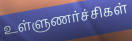
உள்ளுணர்ச்சிகள்